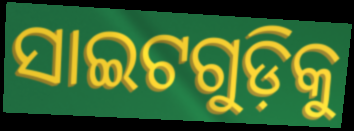
ସାଇଟଗୁଡ଼ିକୁ